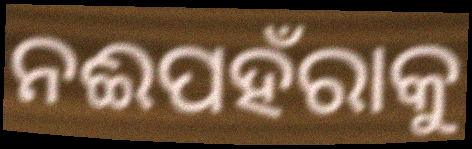
ନଈପହଁରାକୁ